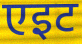
एइट